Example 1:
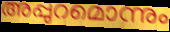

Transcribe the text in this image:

അപ്പുറമൊന്നും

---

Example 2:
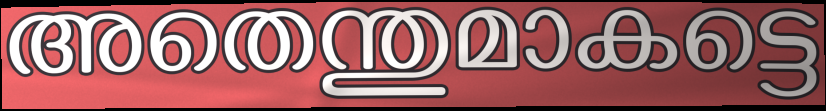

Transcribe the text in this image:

അതെന്തുമാകട്ടെ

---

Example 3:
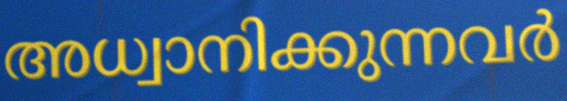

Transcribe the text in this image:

അധ്വാനിക്കുന്നവർ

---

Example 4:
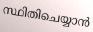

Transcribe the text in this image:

സ്ഥിതിചെയ്യാൻ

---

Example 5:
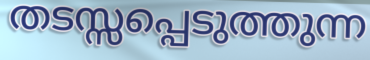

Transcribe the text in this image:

തടസ്സപ്പെടുത്തുന്ന